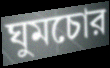
ঘুমচোর